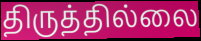
திருத்தில்லை